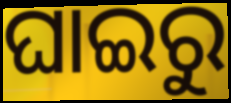
ଘାଇରୁ